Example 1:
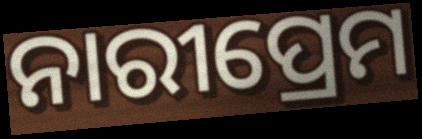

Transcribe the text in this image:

ନାରୀପ୍ରେମ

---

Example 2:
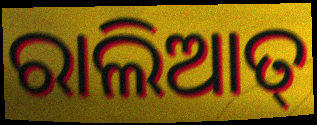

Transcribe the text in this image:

ରାଲିଆତ୍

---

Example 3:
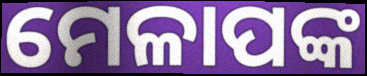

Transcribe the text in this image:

ମେଳାପଙ୍କ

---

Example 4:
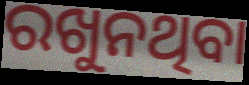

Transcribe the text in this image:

ରଖୁନଥିବା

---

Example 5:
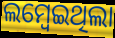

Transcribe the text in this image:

ଲମ୍ବେଇଥିଲା